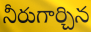
నీరుగార్చిన